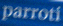
parroti